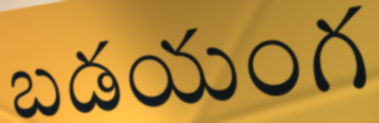
బడయంగ